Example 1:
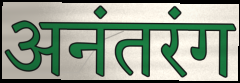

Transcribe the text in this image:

अनंतरंग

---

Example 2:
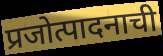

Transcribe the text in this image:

प्रजोत्पादनाची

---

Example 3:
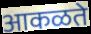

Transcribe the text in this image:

आकळते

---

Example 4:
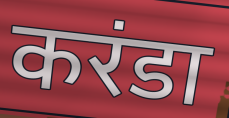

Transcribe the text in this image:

करंडा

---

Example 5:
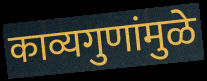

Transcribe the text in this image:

काव्यगुणांमुळे